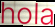
hola